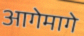
आगेमागे